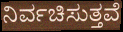
ನಿರ್ವಚಿಸುತ್ತವೆ